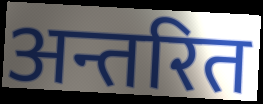
अन्तरित